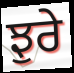
ਝੁਰੇ